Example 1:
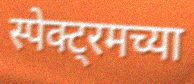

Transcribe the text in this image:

स्पेक्ट्रमच्या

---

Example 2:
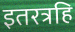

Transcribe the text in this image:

इतरत्रहि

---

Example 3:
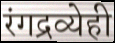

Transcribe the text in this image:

रंगद्रव्येही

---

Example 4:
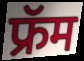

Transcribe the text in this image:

फ्रॅम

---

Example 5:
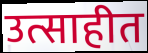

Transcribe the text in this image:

उत्साहीत